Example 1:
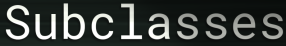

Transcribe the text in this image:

Subclasses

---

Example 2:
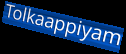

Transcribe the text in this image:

Tolkaappiyam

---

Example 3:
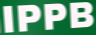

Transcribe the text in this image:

IPPB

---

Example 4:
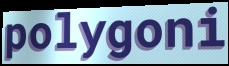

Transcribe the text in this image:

polygoni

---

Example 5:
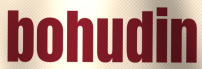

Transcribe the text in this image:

bohudin